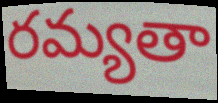
రమ్యతా